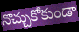
నొచ్చుకోకుండా